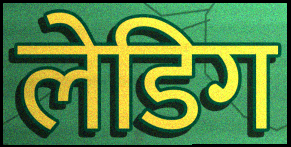
लेडिग